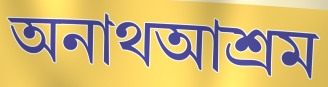
অনাথআশ্রম